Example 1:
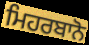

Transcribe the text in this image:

ਮਿਹਰਬਾਨੋ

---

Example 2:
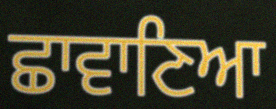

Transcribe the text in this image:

ਛਾਵਾਣਿਆ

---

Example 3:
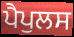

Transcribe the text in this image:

ਪੈਪੁਲਸ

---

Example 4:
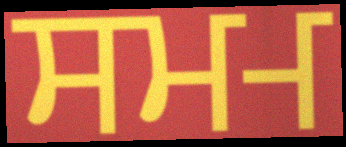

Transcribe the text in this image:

ਸਮ੍ਮ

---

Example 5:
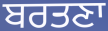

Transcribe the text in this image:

ਬਰਤਣਾ